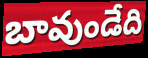
బావుండేది